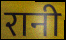
रानी